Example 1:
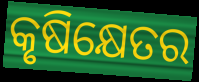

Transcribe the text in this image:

କୃଷିକ୍ଷେତର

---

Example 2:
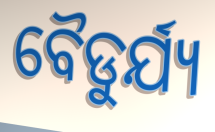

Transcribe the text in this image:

ବୈଡୁର୍ଯ୍ୟ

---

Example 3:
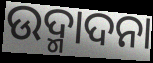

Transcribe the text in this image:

ଉଦ୍ମାଦନା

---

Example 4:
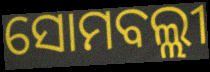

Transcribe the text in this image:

ସୋମବଲ୍ଲୀ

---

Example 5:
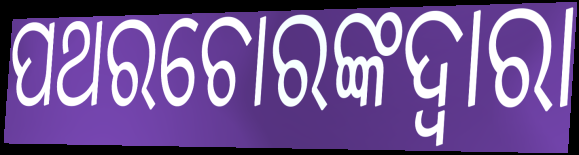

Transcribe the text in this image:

ପଥରଚୋରଙ୍କଦ୍ୱାରା